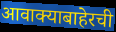
आवाक्याबाहेरची